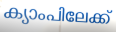
ക്യാംപിലേക്ക്